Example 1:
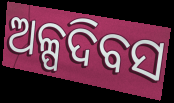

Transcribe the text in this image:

ଅଳ୍ପଦିବସ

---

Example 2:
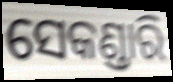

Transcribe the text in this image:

ସେକଣ୍ଡାରି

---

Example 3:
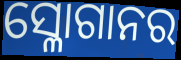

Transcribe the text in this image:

ସ୍ଳୋଗାନର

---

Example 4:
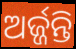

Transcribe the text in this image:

ଅର୍ଜ୍ଜନ୍ତି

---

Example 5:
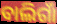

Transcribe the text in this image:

ବାଲିଗାଁ